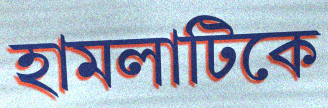
হামলাটিকে